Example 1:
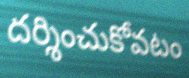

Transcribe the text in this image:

దర్శించుకోవటం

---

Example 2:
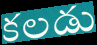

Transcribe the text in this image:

కలడు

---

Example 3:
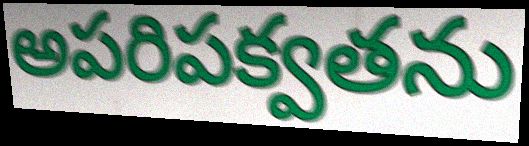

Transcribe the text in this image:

అపరిపక్వతను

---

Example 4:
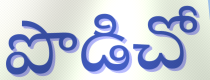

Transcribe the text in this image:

పొడిచో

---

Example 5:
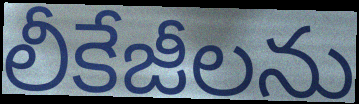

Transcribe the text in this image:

లీకేజీలను